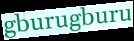
gburugburu